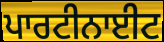
ਪਾਰਟੀਨਾਈਟ